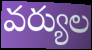
వర్యుల